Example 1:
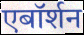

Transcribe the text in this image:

एबॉर्शन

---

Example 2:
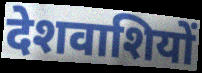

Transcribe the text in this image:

देशवाशियों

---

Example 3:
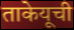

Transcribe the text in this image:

ताकेयूची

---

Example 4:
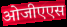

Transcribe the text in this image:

ओजीएएस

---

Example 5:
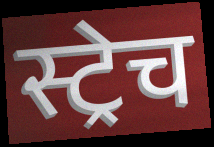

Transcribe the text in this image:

स्ट्रेच